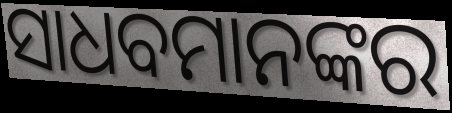
ସାଧବମାନଙ୍କର